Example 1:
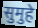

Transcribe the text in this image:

सुमुहे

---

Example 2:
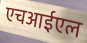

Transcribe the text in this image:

एचआईएल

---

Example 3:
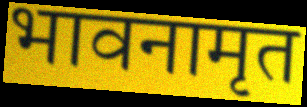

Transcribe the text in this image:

भावनामृत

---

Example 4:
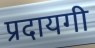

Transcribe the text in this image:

प्रदायगी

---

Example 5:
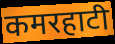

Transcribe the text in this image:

कमरहाटी